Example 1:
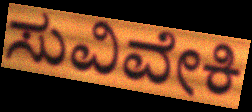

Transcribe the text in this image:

ಸುವಿವೇಕಿ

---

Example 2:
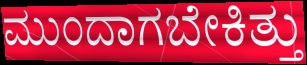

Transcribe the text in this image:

ಮುಂದಾಗಬೇಕಿತ್ತು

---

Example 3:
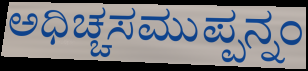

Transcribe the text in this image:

ಅಧಿಚ್ಚಸಮುಪ್ಪನ್ನಂ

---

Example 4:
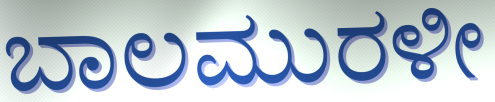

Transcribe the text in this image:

ಬಾಲಮುರಳೀ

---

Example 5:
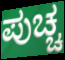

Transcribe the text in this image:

ಪುಚ್ಚ